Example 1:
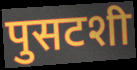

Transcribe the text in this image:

पुसटशी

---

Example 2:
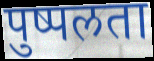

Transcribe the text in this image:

पुष्पलता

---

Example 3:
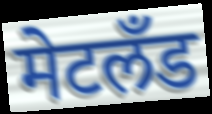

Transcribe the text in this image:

मेटलँड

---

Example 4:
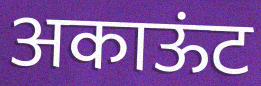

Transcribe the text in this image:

अकाऊंट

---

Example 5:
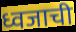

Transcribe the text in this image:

ध्वजाची